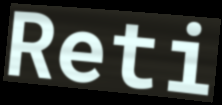
Reti